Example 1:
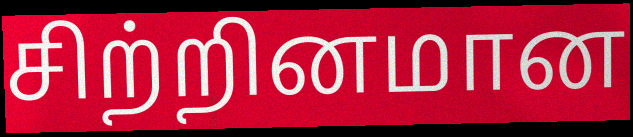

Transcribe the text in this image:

சிற்றினமான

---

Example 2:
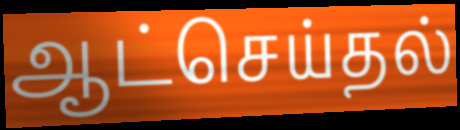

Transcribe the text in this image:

ஆட்செய்தல்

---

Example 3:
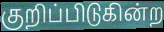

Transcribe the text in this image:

குறிப்பிடுகின்ற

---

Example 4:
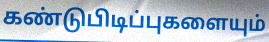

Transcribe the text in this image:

கண்டுபிடிப்புகளையும்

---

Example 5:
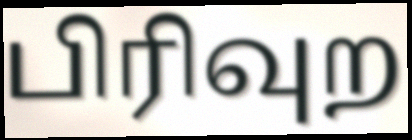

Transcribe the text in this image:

பிரிவுற